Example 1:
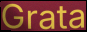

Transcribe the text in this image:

Grata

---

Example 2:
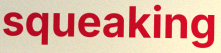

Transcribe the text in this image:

squeaking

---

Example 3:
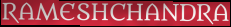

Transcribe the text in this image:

RAMESHCHANDRA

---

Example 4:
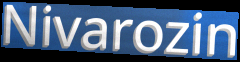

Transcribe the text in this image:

Nivarozin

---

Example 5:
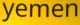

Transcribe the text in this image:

yemen